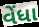
વેંધા